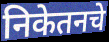
निकेतनचे